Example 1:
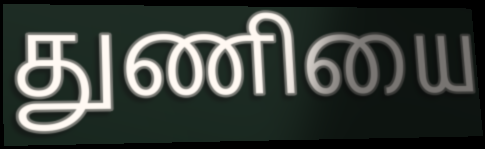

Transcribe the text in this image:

துணியை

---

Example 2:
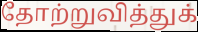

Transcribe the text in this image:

தோற்றுவித்துக்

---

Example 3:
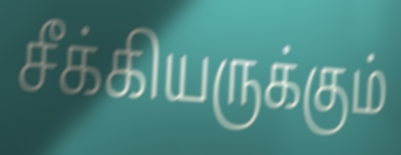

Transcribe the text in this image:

சீக்கியருக்கும்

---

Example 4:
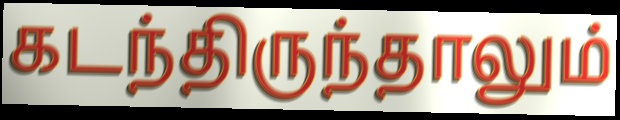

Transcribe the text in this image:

கடந்திருந்தாலும்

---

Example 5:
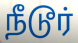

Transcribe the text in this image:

நீடூர்